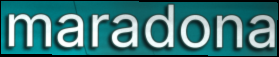
maradona